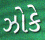
ઝોકે